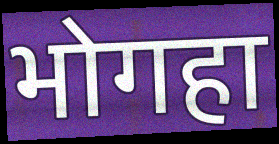
भोगहा